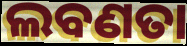
ଲବଣତା